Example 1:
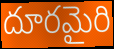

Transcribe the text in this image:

దూరమైరి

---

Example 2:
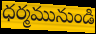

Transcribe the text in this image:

ధర్మమునుండి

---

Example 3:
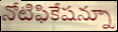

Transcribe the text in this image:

నోటిఫికేషన్నూ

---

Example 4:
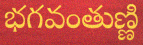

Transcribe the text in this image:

భగవంతుణ్ణి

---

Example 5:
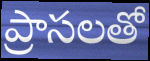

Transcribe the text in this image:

ప్రాసలతో